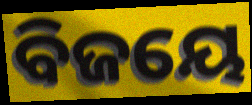
ବିଜୟେ